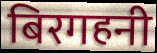
बिरगहनी